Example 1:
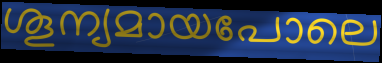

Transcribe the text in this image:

ശൂന്യമായപോലെ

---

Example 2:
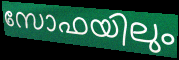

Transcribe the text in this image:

സോഫയിലും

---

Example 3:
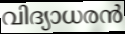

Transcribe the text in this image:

വിദ്യാധരൻ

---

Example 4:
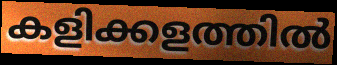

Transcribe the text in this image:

കളിക്കളത്തിൽ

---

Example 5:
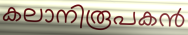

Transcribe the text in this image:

കലാനിരൂപകൻ